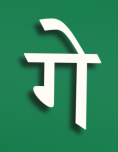
गे